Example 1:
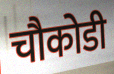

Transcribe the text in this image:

चौकोडी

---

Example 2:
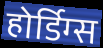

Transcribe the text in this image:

होर्डिग्स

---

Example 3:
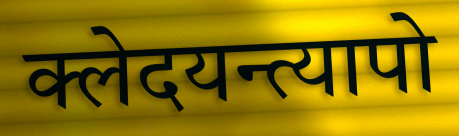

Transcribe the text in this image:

क्लेदयन्त्यापो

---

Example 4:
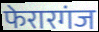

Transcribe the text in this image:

फेरारगंज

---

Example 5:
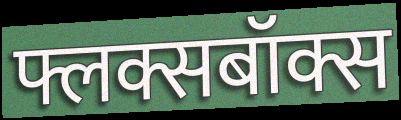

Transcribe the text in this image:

फ्लक्सबॉक्स